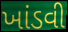
ખાંડવી